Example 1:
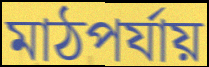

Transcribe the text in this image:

মাঠপর্যায়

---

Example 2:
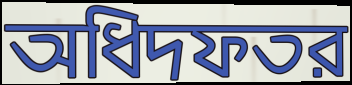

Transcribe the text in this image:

অধিদফতর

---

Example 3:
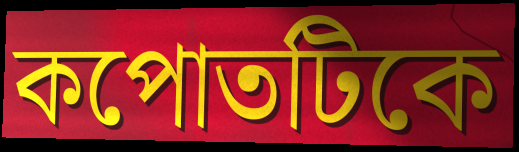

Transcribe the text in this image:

কপোতটিকে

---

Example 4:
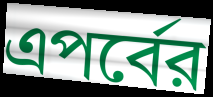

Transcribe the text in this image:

এপর্বের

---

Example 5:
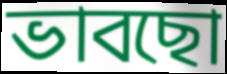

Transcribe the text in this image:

ভাবছো